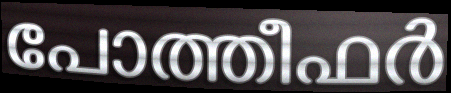
പോത്തീഫർ